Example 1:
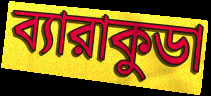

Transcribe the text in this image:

ব্যারাকুডা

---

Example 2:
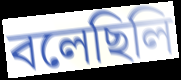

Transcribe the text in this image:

বলেছিলি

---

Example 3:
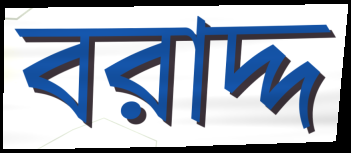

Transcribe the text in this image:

বরাদ্দ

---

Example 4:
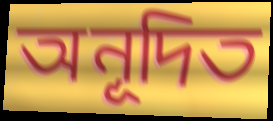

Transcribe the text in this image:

অনূদিত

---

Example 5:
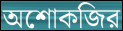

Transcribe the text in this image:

অশোকজির